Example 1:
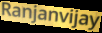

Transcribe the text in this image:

Ranjanvijay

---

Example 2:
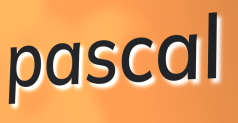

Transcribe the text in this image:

pascal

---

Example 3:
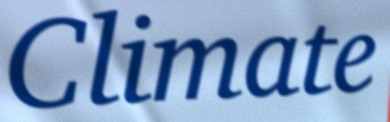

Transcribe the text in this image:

Climate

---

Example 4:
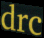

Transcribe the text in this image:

drc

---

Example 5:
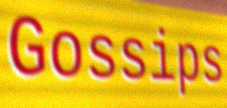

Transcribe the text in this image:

Gossips